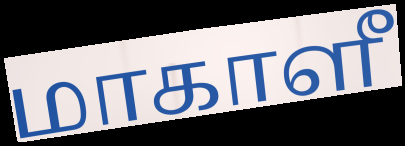
மாகாளீ